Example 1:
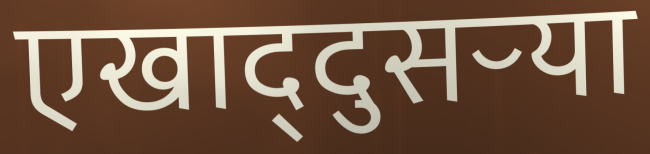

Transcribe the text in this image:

एखाद्‌दुसऱ्या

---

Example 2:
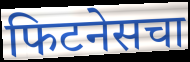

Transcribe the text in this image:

फिटनेसचा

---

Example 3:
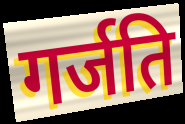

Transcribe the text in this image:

गर्जति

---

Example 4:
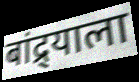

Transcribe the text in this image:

बांद्र्याला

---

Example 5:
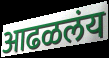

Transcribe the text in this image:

आढळलंय